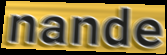
nande